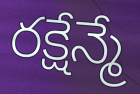
రక్షేన్మే